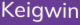
Keigwin